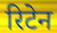
रिटेन